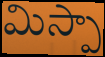
మిస్పా